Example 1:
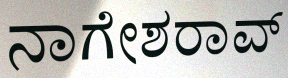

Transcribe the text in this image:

ನಾಗೇಶರಾವ್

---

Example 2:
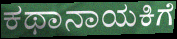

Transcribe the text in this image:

ಕಥಾನಾಯಕಿಗೆ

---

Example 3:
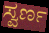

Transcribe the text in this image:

ಸ್ವರ್ಣ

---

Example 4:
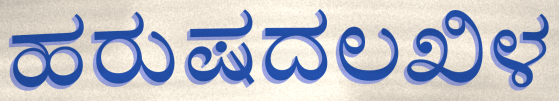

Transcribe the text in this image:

ಹರುಷದಲಖಿಳ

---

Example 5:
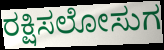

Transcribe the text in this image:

ರಕ್ಷಿಸಲೋಸುಗ